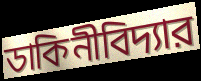
ডাকিনীবিদ্যার